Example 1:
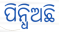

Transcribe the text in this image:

ପିନ୍ଧିଅଛି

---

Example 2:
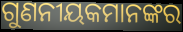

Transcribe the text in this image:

ଗୁଣନୀୟକମାନଙ୍କର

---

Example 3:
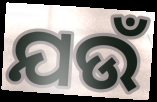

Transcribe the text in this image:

ଯଉଁ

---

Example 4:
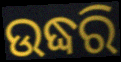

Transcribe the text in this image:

ଉଦ୍ଧରି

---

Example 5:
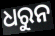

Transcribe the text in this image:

ଧରୁନ